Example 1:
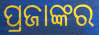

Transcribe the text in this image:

ପ୍ରଜାଙ୍କର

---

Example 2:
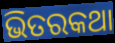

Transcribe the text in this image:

ଭିତରକଥା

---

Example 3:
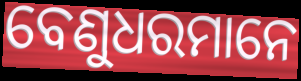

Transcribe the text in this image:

ବେଣୁଧରମାନେ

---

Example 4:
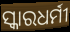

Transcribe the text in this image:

ସ୍କାରଧର୍ମୀ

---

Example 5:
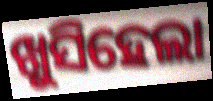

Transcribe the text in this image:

ଖୁସିହେଲା